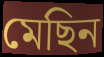
মেছিন